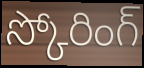
స్కోరింగ్